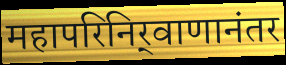
महापरिनिर्वाणानंतर